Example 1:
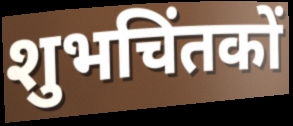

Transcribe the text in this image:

शुभचिंतकों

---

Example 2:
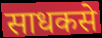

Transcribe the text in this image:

साधकसे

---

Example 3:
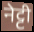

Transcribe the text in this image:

नेट्टी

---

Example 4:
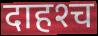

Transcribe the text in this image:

दाहश्च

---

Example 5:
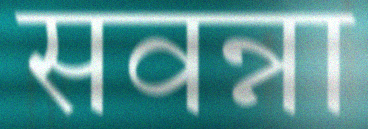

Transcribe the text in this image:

सवन्ना